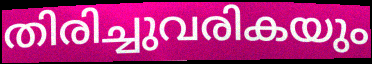
തിരിച്ചുവരികയും